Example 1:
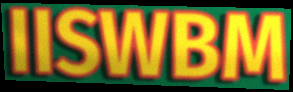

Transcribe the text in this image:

IISWBM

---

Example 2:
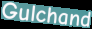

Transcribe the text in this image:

Gulchand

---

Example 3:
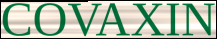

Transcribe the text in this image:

COVAXIN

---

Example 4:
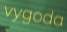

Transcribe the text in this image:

vygoda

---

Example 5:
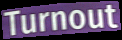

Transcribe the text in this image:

Turnout